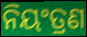
ନିୟଂତ୍ରଣ